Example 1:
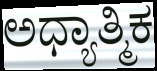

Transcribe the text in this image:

ಅಧ್ಯಾತ್ಮಿಕ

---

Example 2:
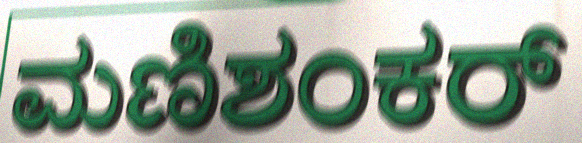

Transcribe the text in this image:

ಮಣಿಶಂಕರ್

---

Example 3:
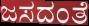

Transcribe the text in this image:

ಜಸದಂತೆ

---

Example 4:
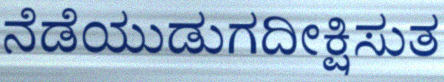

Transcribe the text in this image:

ನೆಡೆಯುಡುಗದೀಕ್ಷಿಸುತ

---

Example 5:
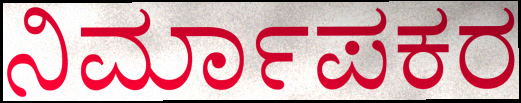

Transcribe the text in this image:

ನಿರ್ಮಾಪಕರ